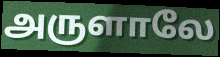
அருளாலே